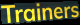
Trainers